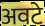
अवटे